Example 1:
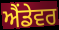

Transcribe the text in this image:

ਐਂਡੇਵਰ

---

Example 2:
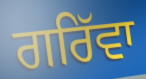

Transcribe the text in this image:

ਗਰਿੱਵਾ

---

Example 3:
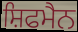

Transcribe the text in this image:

ਸ਼ਿਫਮੈਨ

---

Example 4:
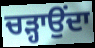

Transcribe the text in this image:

ਚੜ੍ਹਾਉਂਦਾ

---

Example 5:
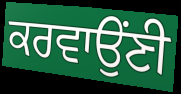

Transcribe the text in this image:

ਕਰਵਾਉਂਣੀ